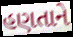
હણતાને